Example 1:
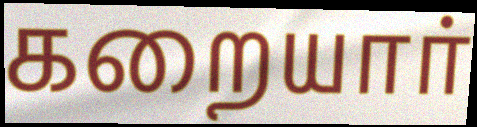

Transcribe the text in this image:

கறையார்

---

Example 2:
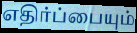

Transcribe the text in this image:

எதிர்ப்பையும்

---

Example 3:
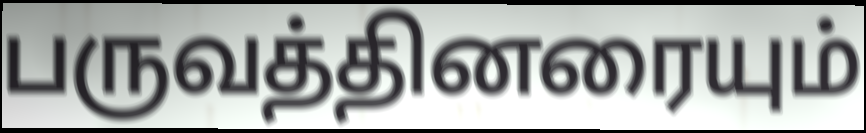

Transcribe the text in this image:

பருவத்தினரையும்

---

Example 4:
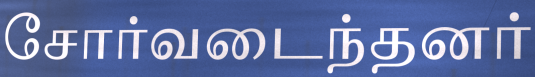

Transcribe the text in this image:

சோர்வடைந்தனர்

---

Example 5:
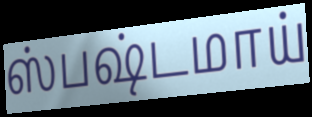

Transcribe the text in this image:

ஸ்பஷ்டமாய்